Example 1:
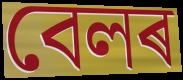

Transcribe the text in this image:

বেলৰ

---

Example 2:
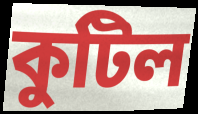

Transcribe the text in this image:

কুটিল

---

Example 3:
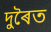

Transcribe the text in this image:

দুৰৈত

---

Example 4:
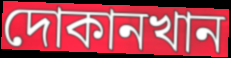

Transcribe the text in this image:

দোকানখান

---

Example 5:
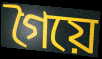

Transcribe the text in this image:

গৈয়ে